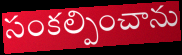
సంకల్పించాను